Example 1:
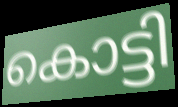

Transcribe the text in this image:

കൊട്ടി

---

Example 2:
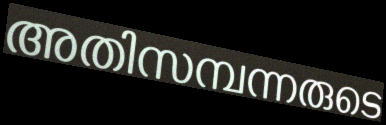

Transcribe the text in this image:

അതിസമ്പന്നരുടെ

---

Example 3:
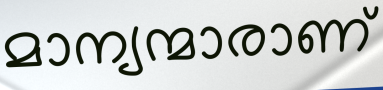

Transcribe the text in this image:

മാന്യന്മാരാണ്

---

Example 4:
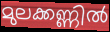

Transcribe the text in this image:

മുലക്കണ്ണിൽ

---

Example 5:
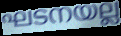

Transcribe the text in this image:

ഘടനയല്ല